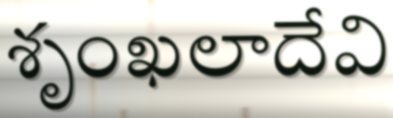
శృంఖలాదేవి